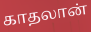
காதலான்